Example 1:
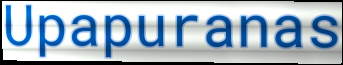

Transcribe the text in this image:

Upapuranas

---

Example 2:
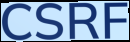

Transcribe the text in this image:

CSRF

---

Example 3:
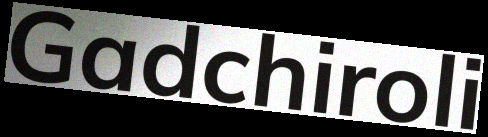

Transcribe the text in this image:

Gadchiroli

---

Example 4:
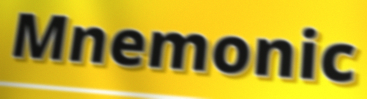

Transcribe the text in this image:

Mnemonic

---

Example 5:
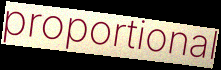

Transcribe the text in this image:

proportional